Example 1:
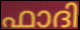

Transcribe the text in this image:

ഫാദി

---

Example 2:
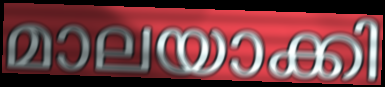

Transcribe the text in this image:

മാലയാക്കി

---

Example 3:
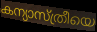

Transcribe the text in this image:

കന്യാസ്ത്രീയെ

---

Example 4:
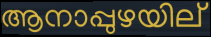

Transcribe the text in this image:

ആനാപ്പുഴയില്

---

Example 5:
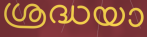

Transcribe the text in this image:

ശ്രദ്ധയാ